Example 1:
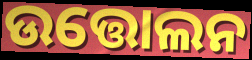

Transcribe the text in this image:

ଉତ୍ତୋଲନ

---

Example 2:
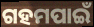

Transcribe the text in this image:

ଗହମପାଇଁ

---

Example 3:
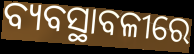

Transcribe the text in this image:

ବ୍ୟବସ୍ଥାବଳୀରେ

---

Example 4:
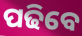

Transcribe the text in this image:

ପଢିବେ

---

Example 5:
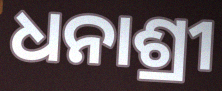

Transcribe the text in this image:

ଧନାଶ୍ରୀ